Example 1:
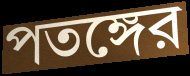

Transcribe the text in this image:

পতঙ্গের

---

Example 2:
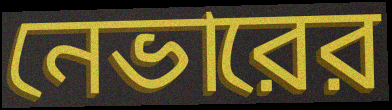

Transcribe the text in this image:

নেভারের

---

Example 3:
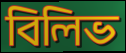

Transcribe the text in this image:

বিলিভ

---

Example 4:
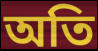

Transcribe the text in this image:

অতি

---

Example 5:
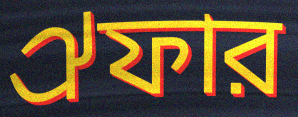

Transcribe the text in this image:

ঐফার